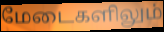
மேடைகளிலும்